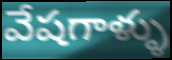
వేషగాళ్ళు